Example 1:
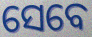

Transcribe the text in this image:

ସେବେ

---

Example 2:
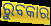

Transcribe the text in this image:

ରୁବକାର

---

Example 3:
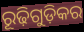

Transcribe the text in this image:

ରୂଢ଼ିଗୁଡ଼ିକର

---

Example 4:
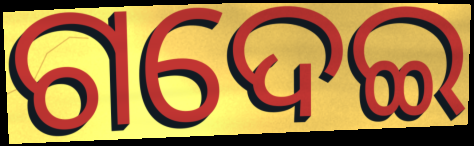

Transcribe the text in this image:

ଗଦେଇ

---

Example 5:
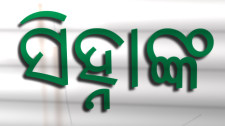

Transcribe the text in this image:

ସିହ୍ନାଙ୍କ